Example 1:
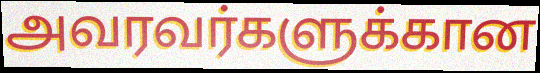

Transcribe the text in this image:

அவரவர்களுக்கான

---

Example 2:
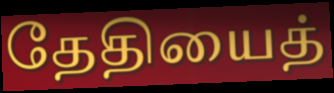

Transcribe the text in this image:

தேதியைத்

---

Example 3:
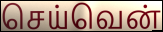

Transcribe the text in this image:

செய்வென்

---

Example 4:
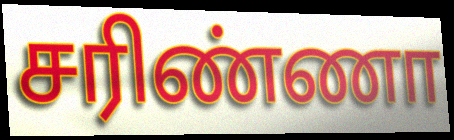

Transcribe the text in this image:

சரிண்ணா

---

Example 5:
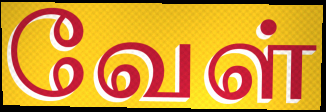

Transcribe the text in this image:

வேள்